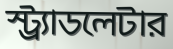
স্ট্র্যাডলেটার